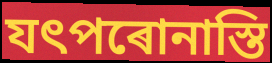
যৎপৰোনাস্তি